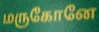
மருகோனே